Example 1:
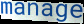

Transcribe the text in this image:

manage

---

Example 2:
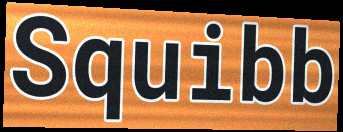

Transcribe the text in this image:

Squibb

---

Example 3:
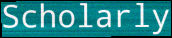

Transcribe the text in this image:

Scholarly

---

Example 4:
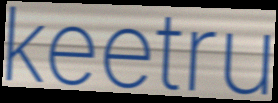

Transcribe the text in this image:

keetru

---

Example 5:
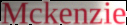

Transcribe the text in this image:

Mckenzie